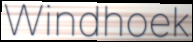
Windhoek